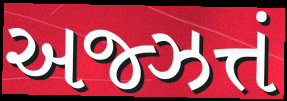
અજ્ઝત્તં